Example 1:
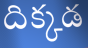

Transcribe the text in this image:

దిక్కడ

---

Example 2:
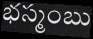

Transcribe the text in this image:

భస్మంబు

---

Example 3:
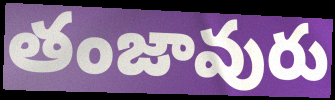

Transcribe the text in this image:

తంజావురు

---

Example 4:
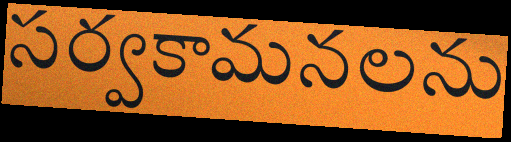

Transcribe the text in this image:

సర్వకామనలను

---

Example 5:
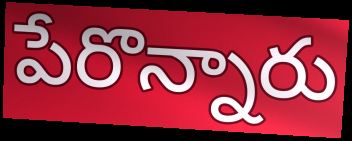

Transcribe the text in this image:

పేరొన్నారు